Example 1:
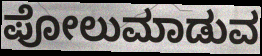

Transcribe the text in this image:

ಪೋಲುಮಾಡುವ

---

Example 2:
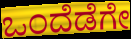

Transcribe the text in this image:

ಒಂದೆಡೆಗೇ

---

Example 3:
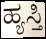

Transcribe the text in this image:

ಹ್ಯಸ್ತಿ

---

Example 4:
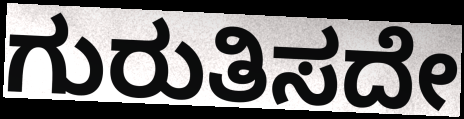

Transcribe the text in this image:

ಗುರುತಿಸದೇ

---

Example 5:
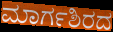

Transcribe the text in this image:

ಮಾರ್ಗಶಿರದ